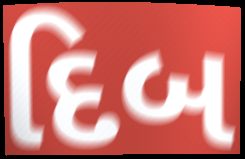
દિબ